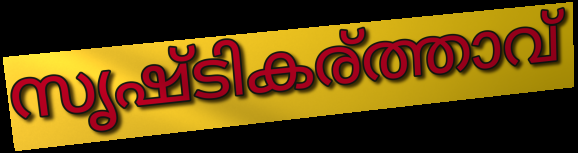
സൃഷ്ടികര്ത്താവ്